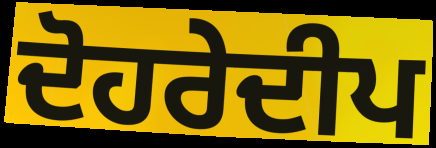
ਦੋਹਰੇਦੀਪ